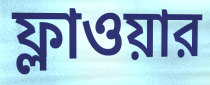
ফ্লাওয়ার